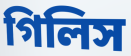
গিলিস